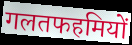
गलतफहमियों